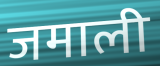
जमाली